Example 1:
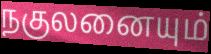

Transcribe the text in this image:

நகுலனையும்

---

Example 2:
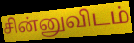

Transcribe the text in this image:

சின்னுவிடம்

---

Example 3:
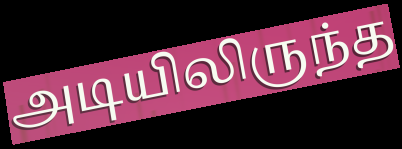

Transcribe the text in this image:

அடியிலிருந்த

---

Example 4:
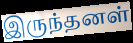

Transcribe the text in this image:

இருந்தனள்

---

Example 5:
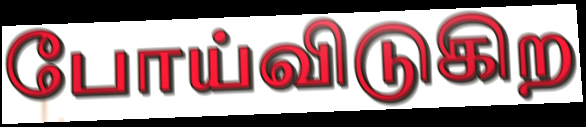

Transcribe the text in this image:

போய்விடுகிற